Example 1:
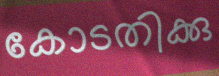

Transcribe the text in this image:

കോടതിക്കു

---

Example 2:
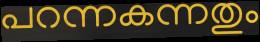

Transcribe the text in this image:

പറന്നകന്നതും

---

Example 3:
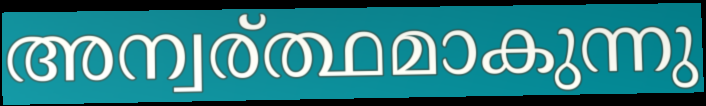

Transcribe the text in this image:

അന്വര്ത്ഥമാകുന്നു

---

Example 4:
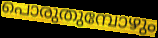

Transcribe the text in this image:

പൊരുതുമ്പോഴും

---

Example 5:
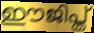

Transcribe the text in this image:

ഈജിപ്ത്